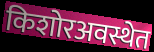
किशोरअवस्थेत